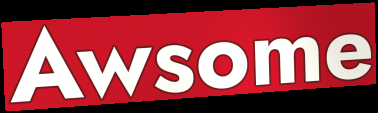
Awsome